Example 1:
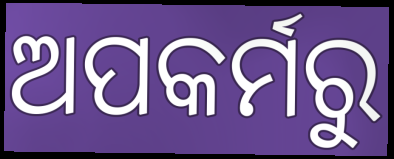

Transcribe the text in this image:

ଅପକର୍ମରୁ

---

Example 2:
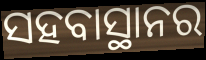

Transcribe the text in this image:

ସହବାସ୍ଥାନର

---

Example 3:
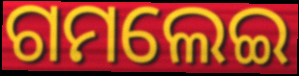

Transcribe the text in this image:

ଗମଲେଇ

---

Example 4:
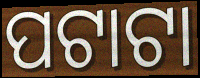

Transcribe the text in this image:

ପଟାଟା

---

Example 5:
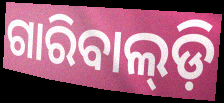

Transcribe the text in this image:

ଗାରିବାଲ୍‌ଡ଼ି